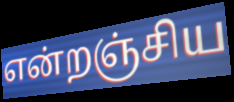
என்றஞ்சிய